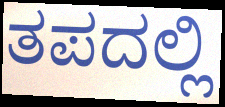
ತಪದಲ್ಲಿ